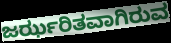
ಜರ್ಝರಿತವಾಗಿರುವ